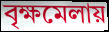
বৃক্ষমেলায়